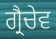
ਗ੍ਰੈਚੇਵ